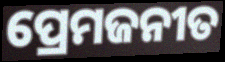
ପ୍ରେମଜନୀତ